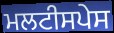
ਮਲਟੀਸਪੇਸ